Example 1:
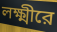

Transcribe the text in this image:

লক্ষ্মীরে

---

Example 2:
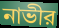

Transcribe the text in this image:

নাভীর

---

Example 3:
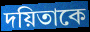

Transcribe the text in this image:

দয়িতাকে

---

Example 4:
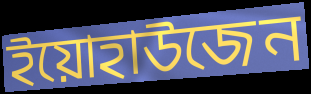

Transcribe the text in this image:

ইয়োহাউজেন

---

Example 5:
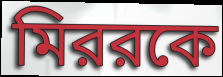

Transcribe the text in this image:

মিররকে